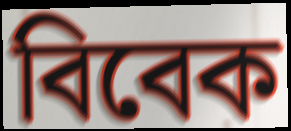
বিবেক